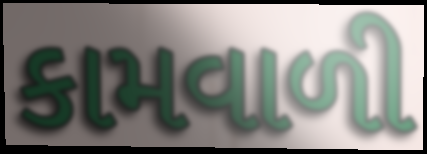
કામવાળી